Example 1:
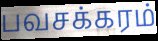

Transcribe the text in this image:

பவசக்கரம்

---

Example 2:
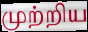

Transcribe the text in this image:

முற்றிய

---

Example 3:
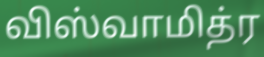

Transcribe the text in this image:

விஸ்வாமித்ர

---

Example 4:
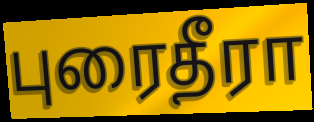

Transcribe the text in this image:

புரைதீரா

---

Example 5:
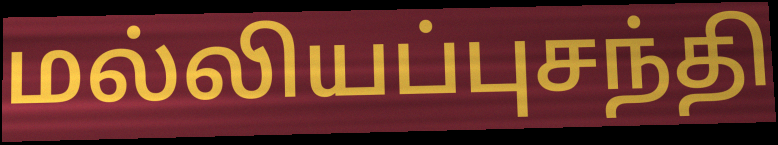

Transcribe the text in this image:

மல்லியப்புசந்தி